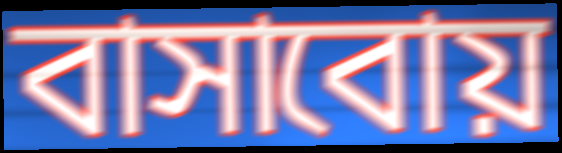
বাসাবোয়